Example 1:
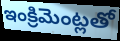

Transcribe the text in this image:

ఇంక్రిమెంట్లతో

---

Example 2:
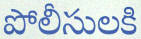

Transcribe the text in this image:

పోలీసులకి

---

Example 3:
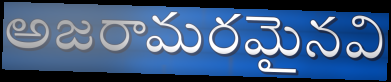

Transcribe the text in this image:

అజరామరమైనవి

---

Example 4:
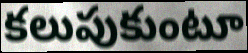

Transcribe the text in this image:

కలుపుకుంటూ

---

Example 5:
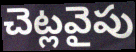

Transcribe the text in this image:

చెట్లవైపు